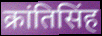
क्रांतिसिंह